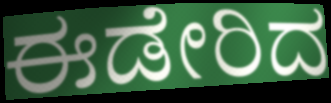
ಈಡೇರಿದ